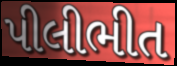
પીલીભીત